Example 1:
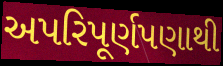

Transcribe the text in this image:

અપરિપૂર્ણપણાથી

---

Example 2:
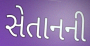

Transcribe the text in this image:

સેતાનની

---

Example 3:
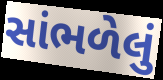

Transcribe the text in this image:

સાંભળેલું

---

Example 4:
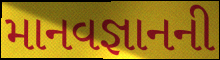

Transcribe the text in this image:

માનવજ્ઞાનની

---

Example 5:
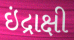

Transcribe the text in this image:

ઇંદ્રાક્ષી